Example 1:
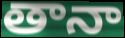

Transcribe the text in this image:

తానా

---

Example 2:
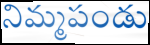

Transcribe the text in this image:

నిమ్మపండు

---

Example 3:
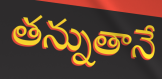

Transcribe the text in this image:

తన్నుతానే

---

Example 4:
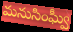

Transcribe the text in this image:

మనుసింఘ్వీ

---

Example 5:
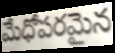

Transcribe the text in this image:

మేధోపరమైన